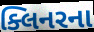
ક્લિનરના